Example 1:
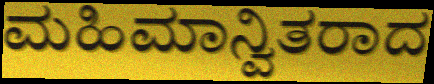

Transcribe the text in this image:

ಮಹಿಮಾನ್ವಿತರಾದ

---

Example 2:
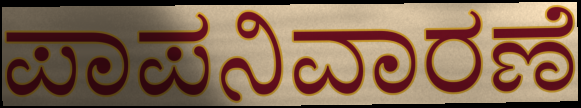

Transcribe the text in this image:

ಪಾಪನಿವಾರಣೆ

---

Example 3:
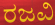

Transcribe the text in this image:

ರಜವಿ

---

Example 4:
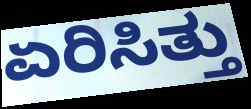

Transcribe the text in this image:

ಏರಿಸಿತ್ತು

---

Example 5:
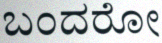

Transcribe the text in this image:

ಬಂದರೋ